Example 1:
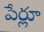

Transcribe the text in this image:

పేర్లూ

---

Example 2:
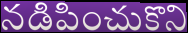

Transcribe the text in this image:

నడిపించుకొని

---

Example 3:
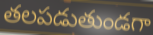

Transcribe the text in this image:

తలపడుతుండగా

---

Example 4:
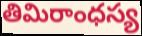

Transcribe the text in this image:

తిమిరాంధస్య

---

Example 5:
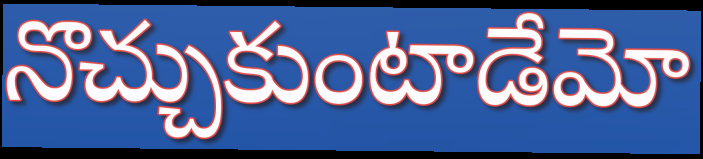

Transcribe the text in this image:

నొచ్చుకుంటాడేమో